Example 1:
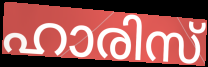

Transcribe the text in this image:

ഹാരിസ്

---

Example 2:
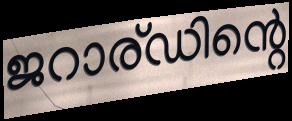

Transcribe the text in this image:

ജറാര്ഡിന്റെ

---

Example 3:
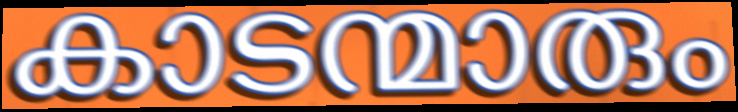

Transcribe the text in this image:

കാടന്മാരും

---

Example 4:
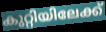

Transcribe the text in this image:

കുറ്റിയിലേക്ക്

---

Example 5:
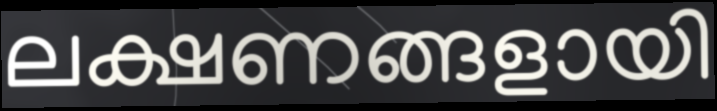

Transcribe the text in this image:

ലക്ഷണങ്ങളായി